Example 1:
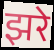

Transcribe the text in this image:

झरे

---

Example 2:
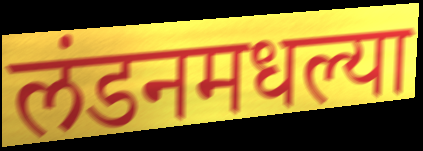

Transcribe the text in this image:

लंडनमधल्या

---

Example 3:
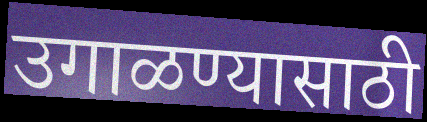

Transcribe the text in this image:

उगाळण्यासाठी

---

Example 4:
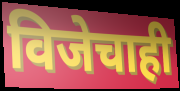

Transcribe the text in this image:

विजेचाही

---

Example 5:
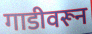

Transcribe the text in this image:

गाडीवरून